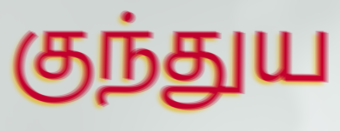
குந்துய